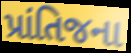
પ્રાંતિજના